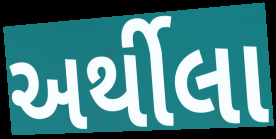
અર્થીલા